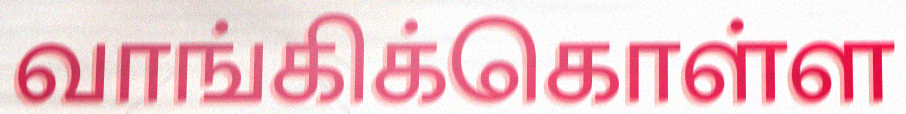
வாங்கிக்கொள்ள